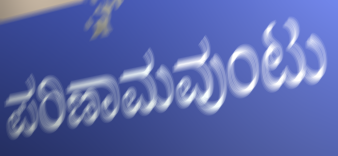
ಪರಿಣಾಮವುಂಟು